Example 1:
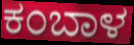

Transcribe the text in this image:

ಕಂಬಾಳ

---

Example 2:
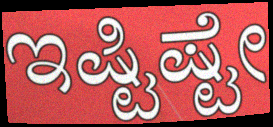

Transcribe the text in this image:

ಇಷ್ಟಿಷ್ಟೇ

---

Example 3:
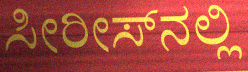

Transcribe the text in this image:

ಸೀರೀಸ್‌ನಲ್ಲಿ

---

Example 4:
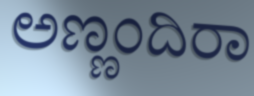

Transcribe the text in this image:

ಅಣ್ಣಂದಿರಾ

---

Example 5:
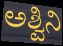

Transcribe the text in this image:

ಅಶ್ವಿನಿ